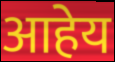
आहेय